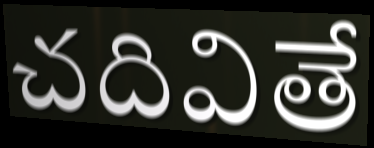
చదివితే